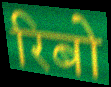
रिबो